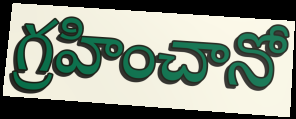
గ్రహించానో